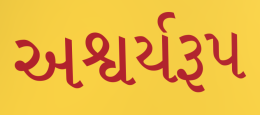
અશ્વર્યરૂપ